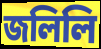
জলিলি